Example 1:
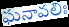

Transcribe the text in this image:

ఘనావలిః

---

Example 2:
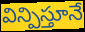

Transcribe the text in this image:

విన్పిస్తూనే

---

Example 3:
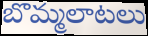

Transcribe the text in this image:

బొమ్మలాటలు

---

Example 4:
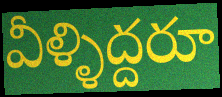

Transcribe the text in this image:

వీళ్ళిద్దరూ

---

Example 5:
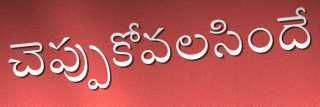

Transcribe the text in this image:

చెప్పుకోవలసిందే